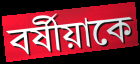
বর্ষীয়াকে